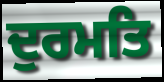
ਦੁਰਮਤਿ